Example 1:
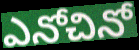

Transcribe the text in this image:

ఎనోచినో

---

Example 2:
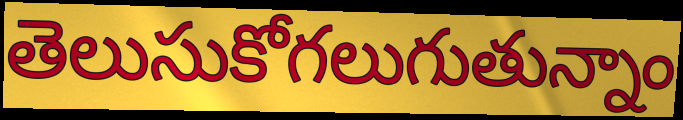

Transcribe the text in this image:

తెలుసుకోగలుగుతున్నాం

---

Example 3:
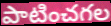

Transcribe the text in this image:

పాటించగల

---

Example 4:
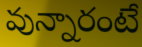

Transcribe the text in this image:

వున్నారంటే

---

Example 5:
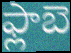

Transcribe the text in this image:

ఫ్లాబె